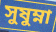
সুষুম্না